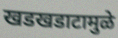
खडखडाटामुळे